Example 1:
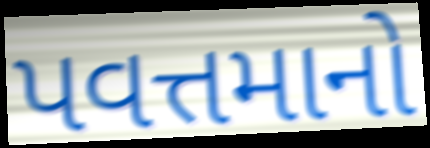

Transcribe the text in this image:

પવત્તમાનો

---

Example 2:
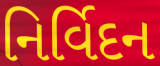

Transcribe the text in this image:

નિર્વિદન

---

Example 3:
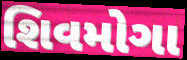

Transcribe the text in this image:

શિવમોગા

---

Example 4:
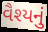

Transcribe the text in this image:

વૈશ્યનું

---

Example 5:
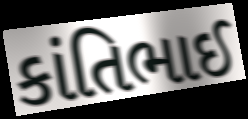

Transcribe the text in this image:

કાંતિભાઈ